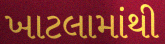
ખાટલામાંથી